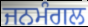
ਜਨਮੰਗਲ